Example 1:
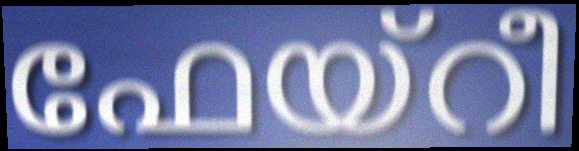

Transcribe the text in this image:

ഫേയ്റീ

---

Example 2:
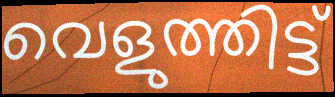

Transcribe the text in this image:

വെളുത്തിട്ട്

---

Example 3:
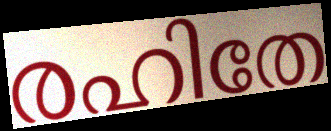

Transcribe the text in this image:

രഹിതേ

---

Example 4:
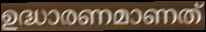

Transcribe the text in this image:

ഉദ്ധാരണമാണത്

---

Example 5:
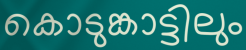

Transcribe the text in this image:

കൊടുങ്കാട്ടിലും